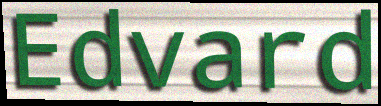
Edvard